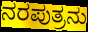
ನರಪುತ್ರನು